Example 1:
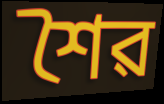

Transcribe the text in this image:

শৈৱ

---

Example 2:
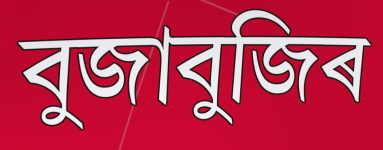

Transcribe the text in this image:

বুজাবুজিৰ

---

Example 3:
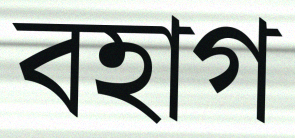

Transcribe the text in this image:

বহাগ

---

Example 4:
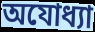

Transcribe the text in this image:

অযোধ্যা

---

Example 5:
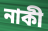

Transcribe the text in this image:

নাকী